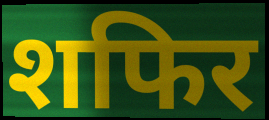
शफिर